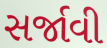
સર્જાવી